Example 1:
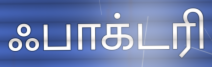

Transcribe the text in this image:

ஃபாக்டரி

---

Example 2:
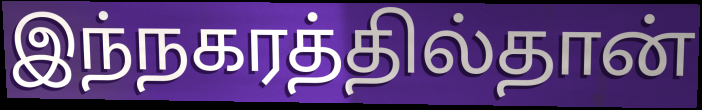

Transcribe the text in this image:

இந்நகரத்தில்தான்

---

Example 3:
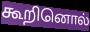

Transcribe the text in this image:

கூறினொல்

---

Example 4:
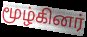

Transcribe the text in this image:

மூழ்கினர்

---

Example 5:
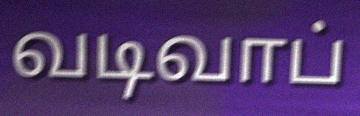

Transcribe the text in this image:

வடிவாப்